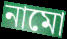
নামো